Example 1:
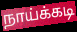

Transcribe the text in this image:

நாய்க்கடி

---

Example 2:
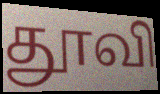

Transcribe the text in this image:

தூவி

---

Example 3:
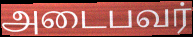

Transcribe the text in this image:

அடைபவர்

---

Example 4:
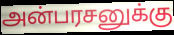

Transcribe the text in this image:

அன்பரசனுக்கு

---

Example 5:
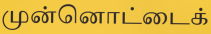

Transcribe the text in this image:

முன்னொட்டைக்